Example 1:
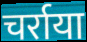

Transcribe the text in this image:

चर्राया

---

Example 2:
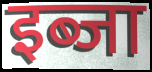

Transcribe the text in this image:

इब्जा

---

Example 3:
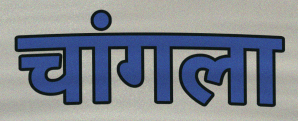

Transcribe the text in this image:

चांगला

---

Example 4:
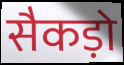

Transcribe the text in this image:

सैकड़ो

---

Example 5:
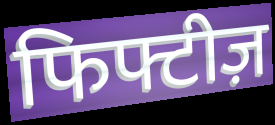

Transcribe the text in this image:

फिफ्टीज़